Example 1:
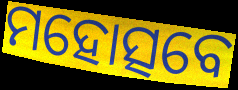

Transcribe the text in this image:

ମହୋତ୍ସବେ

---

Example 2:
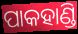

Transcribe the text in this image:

ପାକହାଣ୍ଡି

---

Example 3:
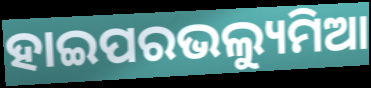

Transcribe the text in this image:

ହାଇପରଭଲ୍ୟୁମିଆ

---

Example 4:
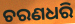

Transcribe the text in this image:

ଚରଣଧରି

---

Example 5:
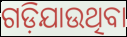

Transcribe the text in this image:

ଗଡ଼ିଯାଉଥିବା